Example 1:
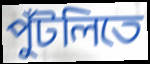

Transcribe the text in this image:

পুঁটলিতে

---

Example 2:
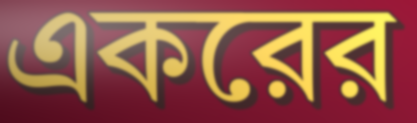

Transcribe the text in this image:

একরের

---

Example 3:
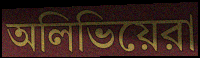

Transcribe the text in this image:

অলিভিয়েরা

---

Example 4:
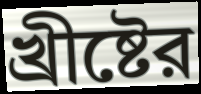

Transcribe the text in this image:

খ্রীষ্টের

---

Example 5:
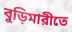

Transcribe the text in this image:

বুড়িমারীতে